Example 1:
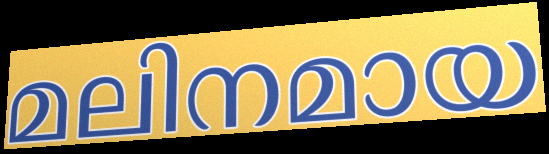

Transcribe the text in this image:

മലിനമായ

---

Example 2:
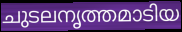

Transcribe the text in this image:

ചുടലനൃത്തമാടിയ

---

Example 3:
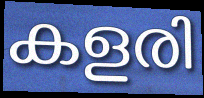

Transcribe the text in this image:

കളരി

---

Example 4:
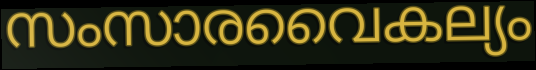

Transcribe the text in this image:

സംസാരവൈകല്യം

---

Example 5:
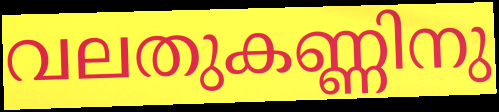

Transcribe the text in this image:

വലതുകണ്ണിനു